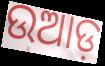
ଉଆଡ଼